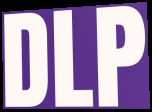
DLP